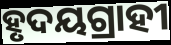
ହୃଦୟଗ୍ରାହୀ